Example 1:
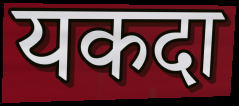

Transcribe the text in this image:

यकदा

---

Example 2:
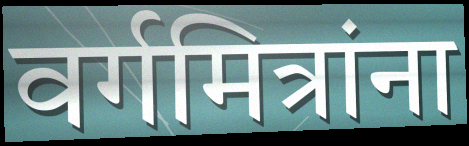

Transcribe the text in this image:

वर्गमित्रांना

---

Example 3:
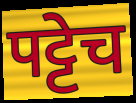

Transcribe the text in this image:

पट्टेच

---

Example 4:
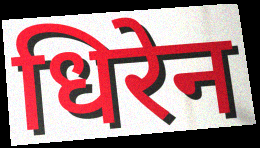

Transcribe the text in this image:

धिरेन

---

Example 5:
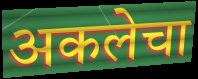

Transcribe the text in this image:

अकलेचा